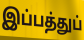
இப்பத்துப்